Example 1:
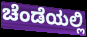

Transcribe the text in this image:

ಚೆಂಡೆಯಲ್ಲಿ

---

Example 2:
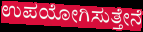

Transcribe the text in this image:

ಉಪಯೋಗಿಸುತ್ತೇನೆ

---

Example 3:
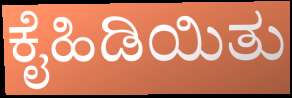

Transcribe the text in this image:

ಕೈಹಿಡಿಯಿತು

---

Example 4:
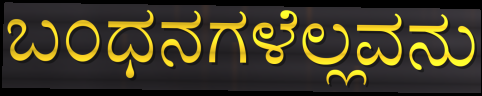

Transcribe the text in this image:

ಬಂಧನಗಳೆಲ್ಲವನು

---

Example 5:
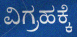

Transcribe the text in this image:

ವಿಗ್ರಹಕ್ಕೆ